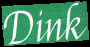
Dink